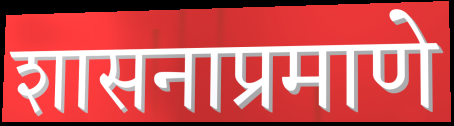
शासनाप्रमाणे